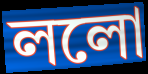
ললো